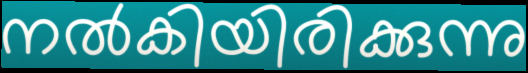
നൽകിയിരിക്കുന്നു